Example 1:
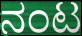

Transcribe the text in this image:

ನಂಟ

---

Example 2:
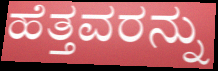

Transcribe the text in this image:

ಹೆತ್ತವರನ್ನು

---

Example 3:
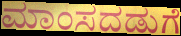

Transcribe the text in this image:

ಮಾಂಸದಡುಗೆ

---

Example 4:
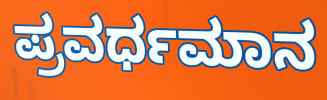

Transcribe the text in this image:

ಪ್ರವರ್ಧಮಾನ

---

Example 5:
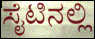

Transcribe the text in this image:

ಸೈಟಿನಲ್ಲಿ